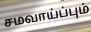
சமவாய்ப்பும்